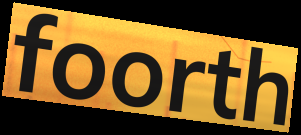
foorth